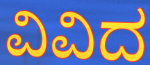
ವಿವಿದ